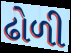
ઢોળી